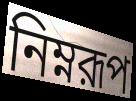
নিম্নরূপ